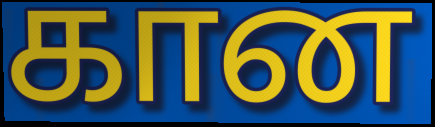
கான